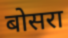
बोसरा